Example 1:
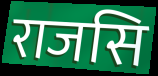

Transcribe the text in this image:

राजसि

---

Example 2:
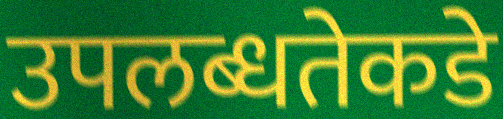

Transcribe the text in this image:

उपलब्धतेकडे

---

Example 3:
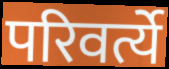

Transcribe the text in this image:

परिवर्त्ये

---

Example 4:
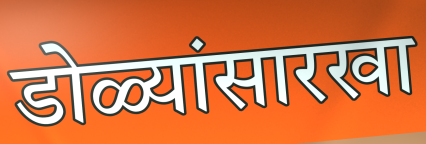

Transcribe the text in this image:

डोळ्यांसारखा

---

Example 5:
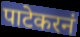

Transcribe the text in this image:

पाटेकरनं